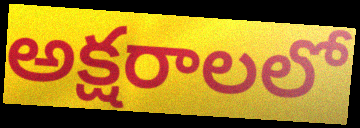
అక్షరాలలో